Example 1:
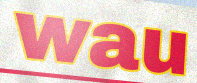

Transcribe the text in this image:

wau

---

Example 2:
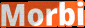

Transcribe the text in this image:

Morbi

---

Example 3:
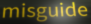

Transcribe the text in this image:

misguide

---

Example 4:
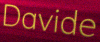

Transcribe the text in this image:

Davide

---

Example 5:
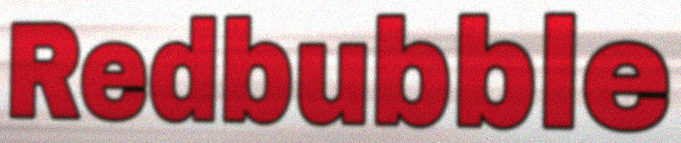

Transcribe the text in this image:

Redbubble